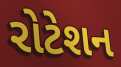
રોટેશન